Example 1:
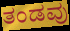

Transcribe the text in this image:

ತಂಡವು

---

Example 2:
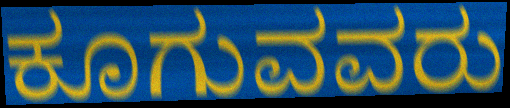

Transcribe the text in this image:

ಕೂಗುವವರು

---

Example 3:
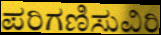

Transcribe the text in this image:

ಪರಿಗಣಿಸುವಿರಿ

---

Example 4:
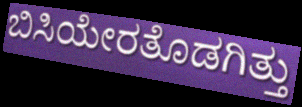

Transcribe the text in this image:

ಬಿಸಿಯೇರತೊಡಗಿತ್ತು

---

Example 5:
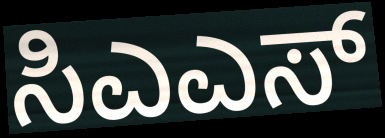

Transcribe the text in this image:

ಸಿಎಎಸ್